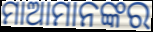
ମାଆମାନଙ୍କର